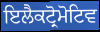
ਇਲੈਕਟ੍ਰੋਮੋਟਿਵ